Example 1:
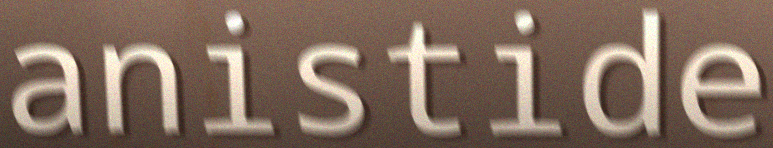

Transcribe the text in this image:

anistide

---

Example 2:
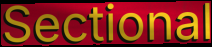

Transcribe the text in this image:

Sectional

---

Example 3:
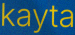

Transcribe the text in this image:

kayta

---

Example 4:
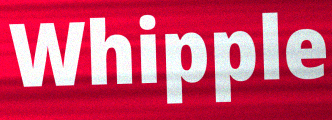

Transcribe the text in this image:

Whipple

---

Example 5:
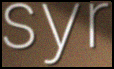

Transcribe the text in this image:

syr